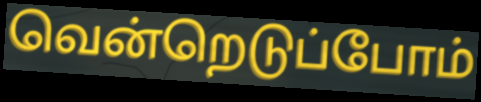
வென்றெடுப்போம்